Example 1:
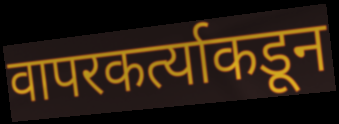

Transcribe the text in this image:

वापरकर्त्याकडून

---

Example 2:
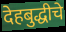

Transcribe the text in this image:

देहबुद्धीचे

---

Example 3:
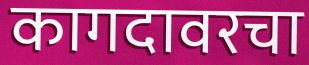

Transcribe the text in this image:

कागदावरचा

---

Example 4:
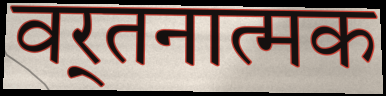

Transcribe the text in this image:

वर्तनात्मक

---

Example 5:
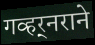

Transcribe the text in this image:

गव्हर्नराने